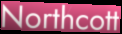
Northcott